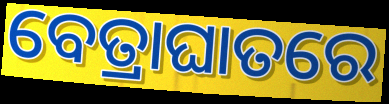
ବେତ୍ରାଘାତରେ